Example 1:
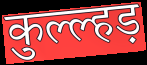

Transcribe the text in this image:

कुल्ल्हड़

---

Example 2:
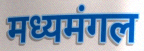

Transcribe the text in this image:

मध्यमंगल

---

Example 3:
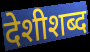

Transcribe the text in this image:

देशीशब्द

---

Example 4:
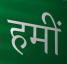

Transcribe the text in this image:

हमीं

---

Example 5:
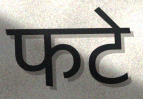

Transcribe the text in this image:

फटे